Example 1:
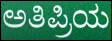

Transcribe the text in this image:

ಅತಿಪ್ರಿಯ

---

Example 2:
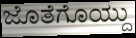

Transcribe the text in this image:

ಜೊತೆಗೊಯ್ದು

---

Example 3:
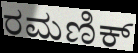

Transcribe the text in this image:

ರಮಣಿಕ್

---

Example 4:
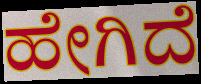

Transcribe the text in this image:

ಹೇಗಿದೆ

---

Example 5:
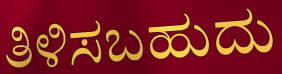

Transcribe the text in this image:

ತಿಳಿಸಬಹುದು